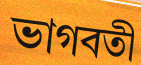
ভাগবতী